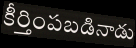
కీర్తింపబడినాడు